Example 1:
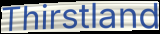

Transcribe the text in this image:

Thirstland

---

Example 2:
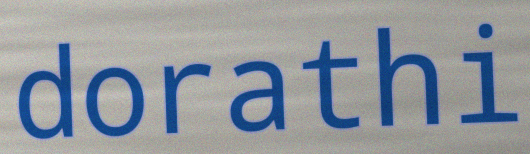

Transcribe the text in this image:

dorathi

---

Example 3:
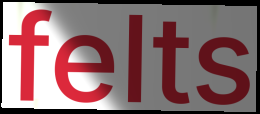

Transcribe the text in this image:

felts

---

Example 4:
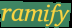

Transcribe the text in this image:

ramify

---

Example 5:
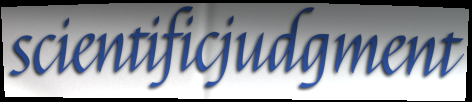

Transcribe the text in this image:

scientificjudgment